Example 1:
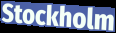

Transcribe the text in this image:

Stockholm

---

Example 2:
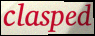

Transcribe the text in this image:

clasped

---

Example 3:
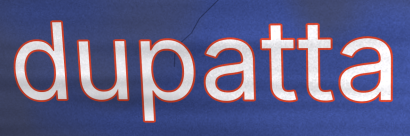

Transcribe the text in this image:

dupatta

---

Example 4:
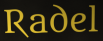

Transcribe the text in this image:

Radel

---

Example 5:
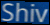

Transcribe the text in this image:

Shiv